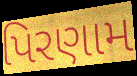
પિરણામ